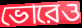
ভোরেও